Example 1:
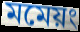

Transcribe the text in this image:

মমেয়ং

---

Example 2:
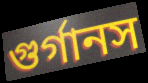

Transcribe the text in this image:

গুর্গানস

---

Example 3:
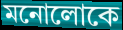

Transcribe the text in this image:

মনোলোকে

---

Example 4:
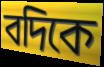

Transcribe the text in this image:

বদিকে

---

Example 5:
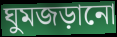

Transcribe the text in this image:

ঘুমজড়ানো